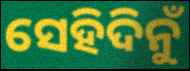
ସେହିଦିନୁଁ